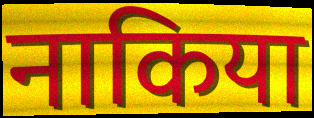
नाकिया